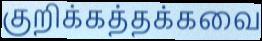
குறிக்கத்தக்கவை